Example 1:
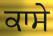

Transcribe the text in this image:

ਕਾਸੇ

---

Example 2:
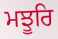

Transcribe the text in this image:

ਮਝੂਰਿ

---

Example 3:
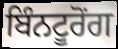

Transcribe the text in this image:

ਬਿੰਨਟੂਰੋਂਗ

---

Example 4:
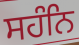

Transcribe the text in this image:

ਸਹੰਨਿ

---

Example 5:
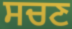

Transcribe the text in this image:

ਸਚਣ